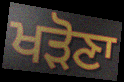
ਖੜੋਣਾ